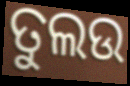
ତୁଲଉ